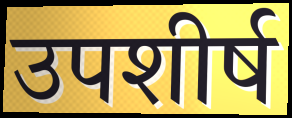
उपशीर्ष